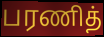
பரணித்